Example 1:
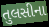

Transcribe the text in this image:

તુલસીના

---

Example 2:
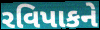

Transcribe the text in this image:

રવિપાકને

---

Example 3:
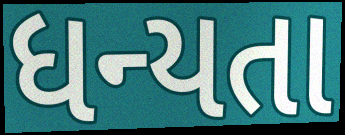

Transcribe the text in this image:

ધન્યતા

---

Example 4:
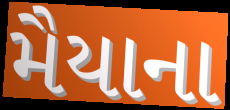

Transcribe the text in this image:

મૈયાના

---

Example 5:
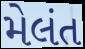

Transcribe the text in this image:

મેલંત